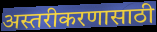
अस्तरीकरणासाठी